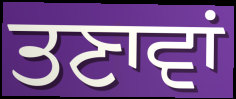
ਤਣਾਵਾਂ